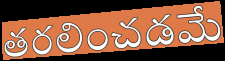
తరలించడమే